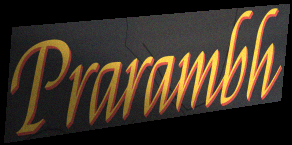
Prarambh